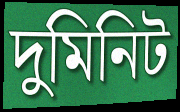
দুমিনিট